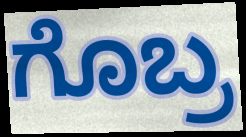
ಗೊಬ್ರ